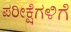
ಪರೀಕ್ಷೆಗಳಿಗೆ